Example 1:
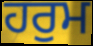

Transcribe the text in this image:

ਹਰੁਮ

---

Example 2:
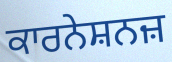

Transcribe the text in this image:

ਕਾਰਨੇਸ਼ਨਜ਼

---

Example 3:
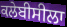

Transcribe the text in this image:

ਕਲੇਬੀਸੀਲਾ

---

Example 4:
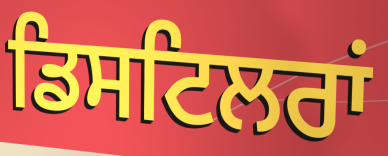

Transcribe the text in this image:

ਡਿਸਟਿਲਰਾਂ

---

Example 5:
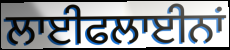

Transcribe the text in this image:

ਲਾਈਫਲਾਈਨਾਂ